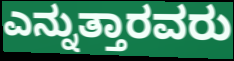
ಎನ್ನುತ್ತಾರವರು